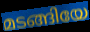
മടങ്ങിയേ